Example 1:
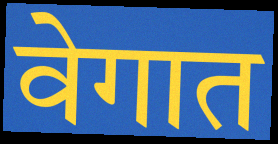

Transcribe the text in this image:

वेगात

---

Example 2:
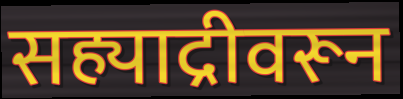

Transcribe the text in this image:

सह्याद्रीवरून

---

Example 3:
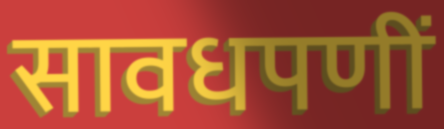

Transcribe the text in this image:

सावधपणीं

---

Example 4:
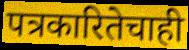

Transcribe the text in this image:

पत्रकारितेचाही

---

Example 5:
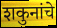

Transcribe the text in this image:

शकुनांचे